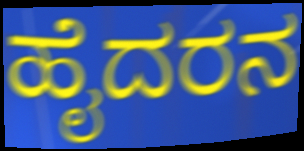
ಹೈದರನ